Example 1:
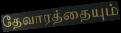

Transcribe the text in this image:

தேவாரத்தையும்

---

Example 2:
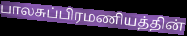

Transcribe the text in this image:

பாலசுப்பிரமணியத்தின்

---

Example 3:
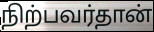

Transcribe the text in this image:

நிற்பவர்தான்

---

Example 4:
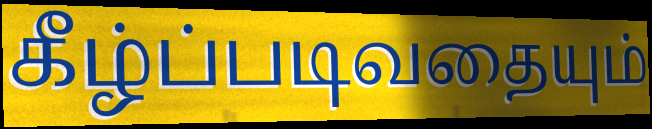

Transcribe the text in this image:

கீழ்ப்படிவதையும்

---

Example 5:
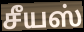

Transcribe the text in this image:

சீயஸ்